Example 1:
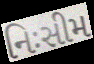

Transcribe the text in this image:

નિઃસીમ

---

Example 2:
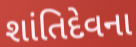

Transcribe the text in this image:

શાંતિદેવના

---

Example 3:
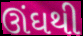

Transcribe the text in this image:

ઊંઘથી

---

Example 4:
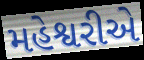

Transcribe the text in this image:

મહેશ્વરીએ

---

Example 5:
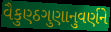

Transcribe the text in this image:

વૈકુણ્ઠગુણાનુવર્ણને